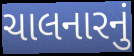
ચાલનારનું